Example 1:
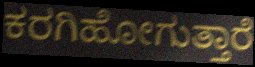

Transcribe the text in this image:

ಕರಗಿಹೋಗುತ್ತಾರೆ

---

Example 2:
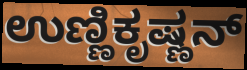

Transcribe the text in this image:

ಉಣ್ಣಿಕೃಷ್ಣನ್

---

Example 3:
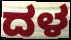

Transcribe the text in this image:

ದಳ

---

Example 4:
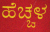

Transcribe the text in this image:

ಹೆಚ್ಚಳ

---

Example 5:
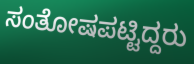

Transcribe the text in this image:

ಸಂತೋಷಪಟ್ಟಿದ್ದರು